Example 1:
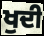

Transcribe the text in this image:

ਖੁਦੀ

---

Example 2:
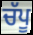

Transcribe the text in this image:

ਚੱਪੂ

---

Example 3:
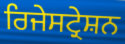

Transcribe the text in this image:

ਰਿਜੇਸਟ੍ਰੇਸ਼ਨ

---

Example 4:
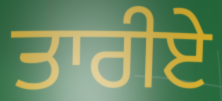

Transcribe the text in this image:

ਤਾਰੀਏ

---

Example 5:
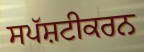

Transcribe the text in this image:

ਸਪੱਸ਼ਟੀਕਰਨ